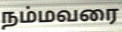
நம்மவரை